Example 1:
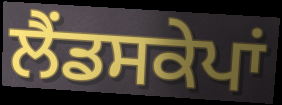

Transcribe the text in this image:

ਲੈਂਡਸਕੇਪਾਂ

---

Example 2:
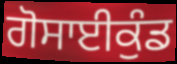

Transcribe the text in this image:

ਗੋਸਾਈਕੁੰਡ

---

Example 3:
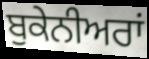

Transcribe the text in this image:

ਬੁਕੇਨੀਅਰਾਂ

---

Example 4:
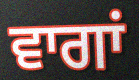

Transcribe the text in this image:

ਵਾਗਾਂ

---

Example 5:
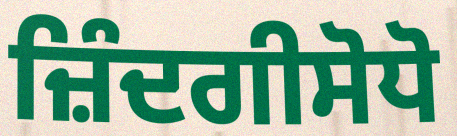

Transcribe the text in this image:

ਜ਼ਿੰਦਗੀਸੋਧੋ